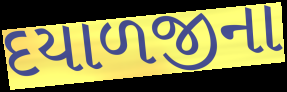
દયાળજીના